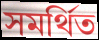
সমৰ্থিত